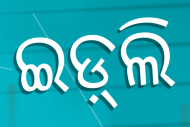
ଇଡ଼୍‌ଲି